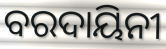
ବରଦାୟିନୀ